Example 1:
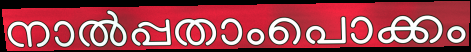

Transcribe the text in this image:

നാൽപ്പതാംപൊക്കം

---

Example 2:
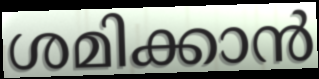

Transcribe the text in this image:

ശമിക്കാൻ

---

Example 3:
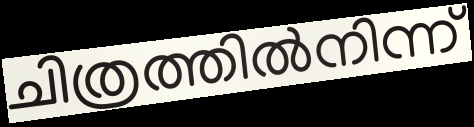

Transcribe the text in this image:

ചിത്രത്തിൽനിന്ന്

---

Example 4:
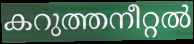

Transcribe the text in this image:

കറുത്തനീറ്റൽ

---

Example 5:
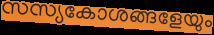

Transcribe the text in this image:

സസ്യകോശങ്ങളേയും